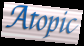
Atopic